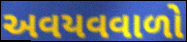
અવયવવાળો